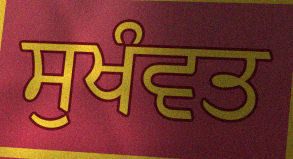
ਸੁਖੰਵਤ